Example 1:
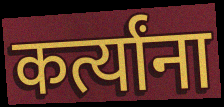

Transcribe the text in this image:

कर्त्यांना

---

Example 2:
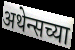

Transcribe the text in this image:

अथेन्सच्या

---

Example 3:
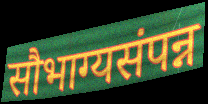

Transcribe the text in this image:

सौभाग्यसंपन्न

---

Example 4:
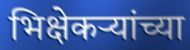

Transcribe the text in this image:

भिक्षेकऱ्यांच्या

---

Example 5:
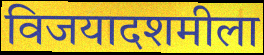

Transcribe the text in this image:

विजयादशमीला